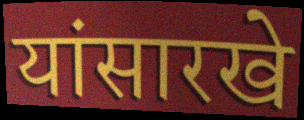
यांसारखे